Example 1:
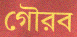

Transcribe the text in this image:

গৌরব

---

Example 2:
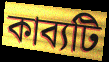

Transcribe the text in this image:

কাব্যটি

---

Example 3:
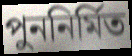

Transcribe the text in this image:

পুননির্মিত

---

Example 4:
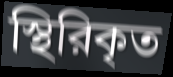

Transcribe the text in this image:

স্থিরিকৃত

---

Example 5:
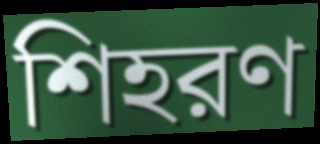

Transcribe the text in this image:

শিহরণ